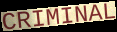
CRIMINAL